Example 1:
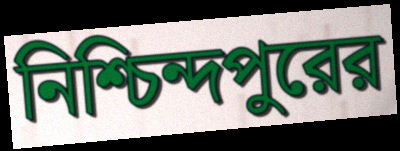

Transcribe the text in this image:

নিশ্চিন্দপুরের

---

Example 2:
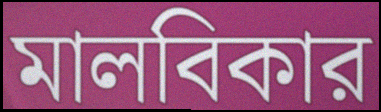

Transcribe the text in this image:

মালবিকার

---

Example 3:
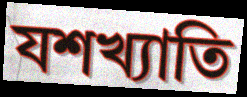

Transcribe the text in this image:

যশখ্যাতি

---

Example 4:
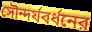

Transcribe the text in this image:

সৌন্দর্যবর্ধনের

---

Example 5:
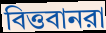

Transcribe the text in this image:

বিত্তবানরা